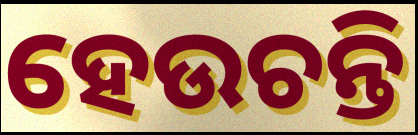
ହେଉଚନ୍ତି